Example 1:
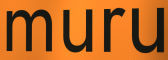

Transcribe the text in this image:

muru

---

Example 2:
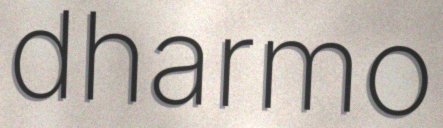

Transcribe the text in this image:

dharmo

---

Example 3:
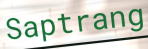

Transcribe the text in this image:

Saptrang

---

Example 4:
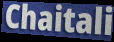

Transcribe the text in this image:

Chaitali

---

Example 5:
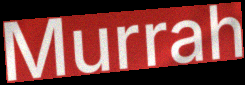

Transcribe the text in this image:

Murrah